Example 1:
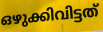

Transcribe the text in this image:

ഒഴുക്കിവിട്ടത്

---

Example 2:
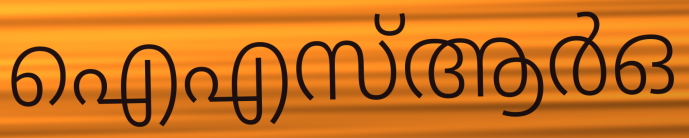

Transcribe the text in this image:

ഐഎസ്ആർഒ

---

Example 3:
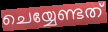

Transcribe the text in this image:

ചെയ്യേണ്ടത്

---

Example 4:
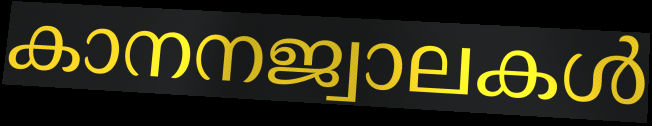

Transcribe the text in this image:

കാനനജ്വാലകൾ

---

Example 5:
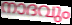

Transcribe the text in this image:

നാദവും